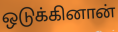
ஒடுக்கினான்